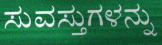
ಸುವಸ್ತುಗಳನ್ನು